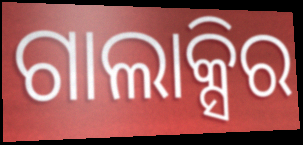
ଗାଲାକ୍ସିର